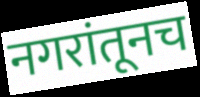
नगरांतूनच